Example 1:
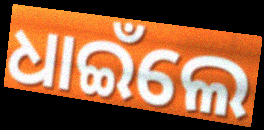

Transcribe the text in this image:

ଧାଇଁଲେ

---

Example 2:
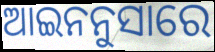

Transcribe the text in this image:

ଆଇନନୁସାରେ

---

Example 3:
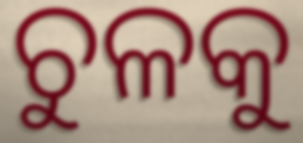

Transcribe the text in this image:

ଚୁଳକୁ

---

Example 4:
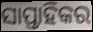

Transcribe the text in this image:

ସାପ୍ତାହିକର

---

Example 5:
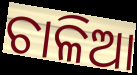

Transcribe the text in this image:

ଚାଳିଆ